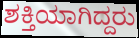
ಶಕ್ತಿಯಾಗಿದ್ದರು